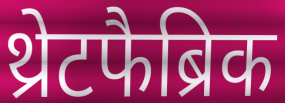
थ्रेटफैब्रिक